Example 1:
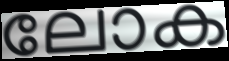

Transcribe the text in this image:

ലോക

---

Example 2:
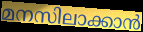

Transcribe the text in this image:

മനസിലാക്കാൻ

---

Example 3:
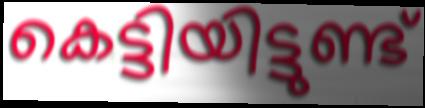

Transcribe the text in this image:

കെട്ടിയിട്ടുണ്ട്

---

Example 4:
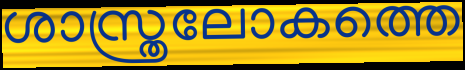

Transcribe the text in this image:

ശാസ്ത്രലോകത്തെ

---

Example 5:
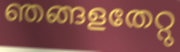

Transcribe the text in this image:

ഞങ്ങളതേറ്റു